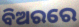
ବିଅରରେ